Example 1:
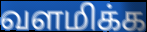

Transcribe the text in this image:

வளமிக்க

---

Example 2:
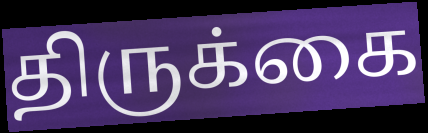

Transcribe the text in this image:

திருக்கை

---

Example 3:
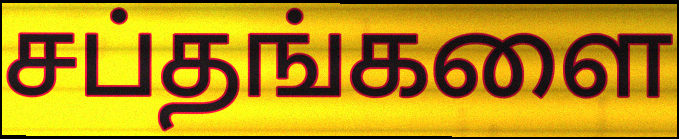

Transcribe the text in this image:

சப்தங்களை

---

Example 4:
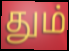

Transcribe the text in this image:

தும்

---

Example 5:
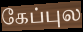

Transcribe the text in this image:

கேப்புல